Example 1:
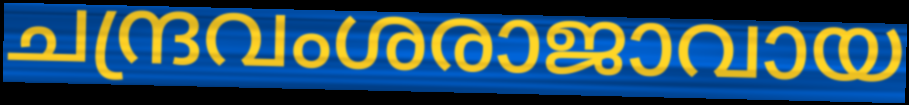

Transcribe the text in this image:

ചന്ദ്രവംശരാജാവായ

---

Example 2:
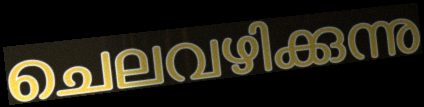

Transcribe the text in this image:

ചെലവഴിക്കുന്നു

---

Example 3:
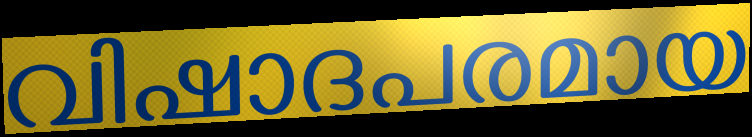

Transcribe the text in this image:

വിഷാദപരമായ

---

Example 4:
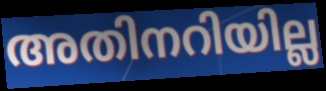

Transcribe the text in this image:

അതിനറിയില്ല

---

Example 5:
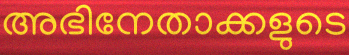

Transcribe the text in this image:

അഭിനേതാക്കളുടെ